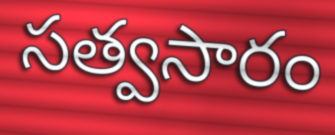
సత్వసారం